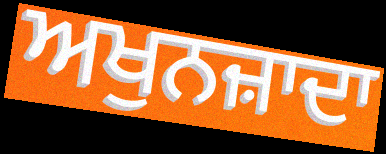
ਅਖੁਨਜ਼ਾਦਾ